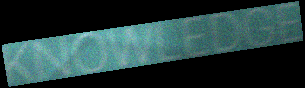
KNOWLEDGE